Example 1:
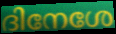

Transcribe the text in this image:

ദിനേശേ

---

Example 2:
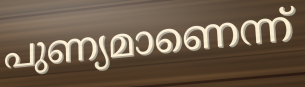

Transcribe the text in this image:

പുണ്യമാണെന്ന്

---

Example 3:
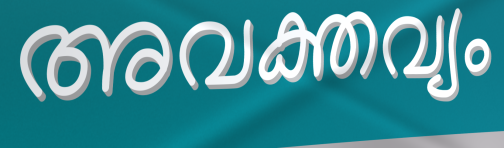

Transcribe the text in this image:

അവക്തവ്യം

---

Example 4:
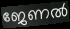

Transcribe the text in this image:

ജേണൽ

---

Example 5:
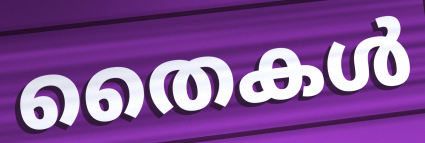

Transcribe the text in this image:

തൈകൾ